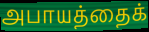
அபாயத்தைக்